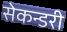
सेकन्डरी